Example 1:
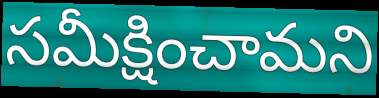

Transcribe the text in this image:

సమీక్షించామని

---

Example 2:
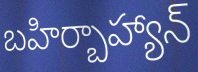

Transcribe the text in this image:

బహిర్బాహ్యాన్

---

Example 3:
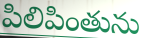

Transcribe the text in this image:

పిలిపింతును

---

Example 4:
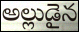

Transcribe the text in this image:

అల్లుడైన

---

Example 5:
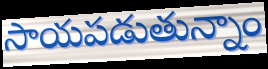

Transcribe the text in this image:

సాయపడుతున్నాం